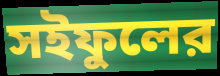
সইফুলের